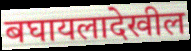
बघायलादेखील